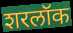
शरलॉक